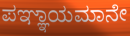
ಪಞ್ಞಾಯಮಾನೇ